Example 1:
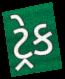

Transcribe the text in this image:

ટ્રેક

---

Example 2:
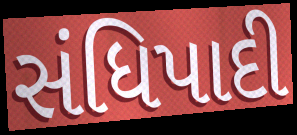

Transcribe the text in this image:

સંધિપાદી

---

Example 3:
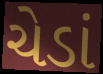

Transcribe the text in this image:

ચેડાં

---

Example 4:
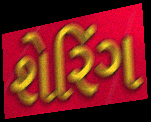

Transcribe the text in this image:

શેરિંગ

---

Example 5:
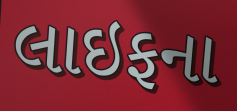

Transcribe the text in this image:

લાઇફના